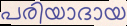
പരിയാദായ